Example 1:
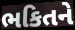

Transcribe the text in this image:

ભકિતને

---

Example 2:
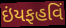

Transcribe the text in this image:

ઇંયફહવિં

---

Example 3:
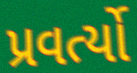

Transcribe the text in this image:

પ્રવર્ત્યો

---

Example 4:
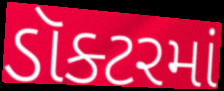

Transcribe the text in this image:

ડૉક્ટરમાં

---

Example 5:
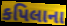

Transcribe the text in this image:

કપિલાના